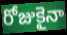
రోజుకైనా